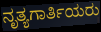
ನೃತ್ಯಗಾರ್ತಿಯರು